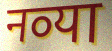
नव्‍या